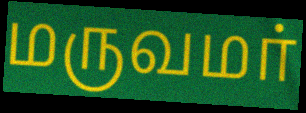
மருவமர்